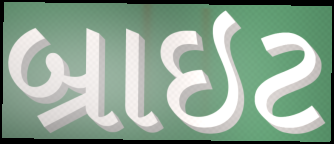
બ્રાઇટ